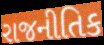
રાજનીતિક